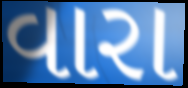
વારા